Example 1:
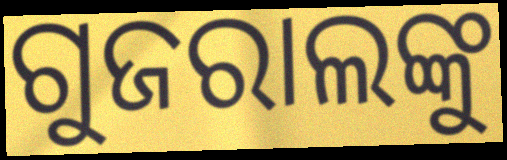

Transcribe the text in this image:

ଗୁଜରାଲଙ୍କୁ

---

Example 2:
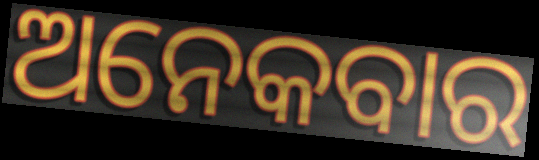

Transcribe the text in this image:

ଅନେକବାର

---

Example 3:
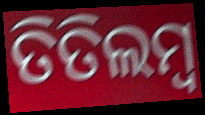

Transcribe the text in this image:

ତିତିଲମ୍ଵ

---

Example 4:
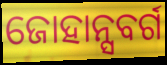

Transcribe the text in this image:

ଜୋହାନ୍ସବର୍ଗ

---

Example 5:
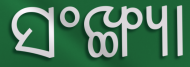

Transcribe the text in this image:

ସଂଙ୍ଖ୍ଯା